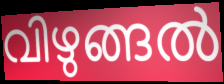
വിഴുങ്ങൽ